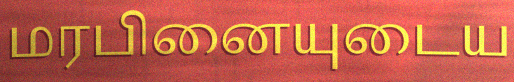
மரபினையுடைய